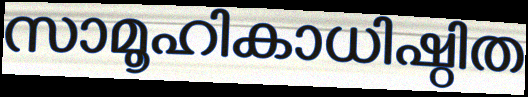
സാമൂഹികാധിഷ്ഠിത